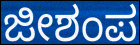
ಜೀಶಂಪ